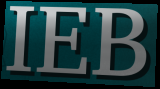
IEB